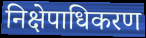
निक्षेपाधिकरण